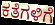
ಕತೆಗಳಿಗೆ